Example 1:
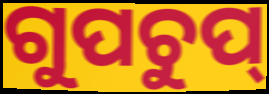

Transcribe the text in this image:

ଗୁପଚୁପ୍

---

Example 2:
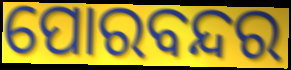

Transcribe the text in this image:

ପୋରବନ୍ଦର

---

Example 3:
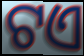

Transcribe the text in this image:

ଟଏ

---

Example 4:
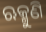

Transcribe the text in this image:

ଋକ୍ମୁଣି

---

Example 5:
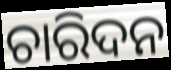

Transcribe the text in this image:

ଚାରିଦନ